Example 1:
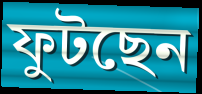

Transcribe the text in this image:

ফুটছেন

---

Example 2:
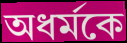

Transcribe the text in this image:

অধর্মকে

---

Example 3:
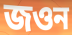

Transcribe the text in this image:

জওন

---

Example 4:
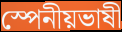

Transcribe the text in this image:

স্পেনীয়ভাষী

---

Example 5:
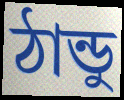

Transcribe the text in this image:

ঠান্ডু